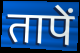
तापें